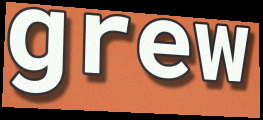
grew